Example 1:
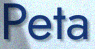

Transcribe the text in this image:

Peta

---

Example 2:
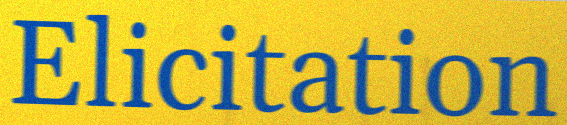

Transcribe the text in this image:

Elicitation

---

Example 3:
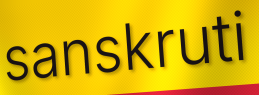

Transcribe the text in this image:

sanskruti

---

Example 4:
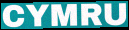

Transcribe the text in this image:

CYMRU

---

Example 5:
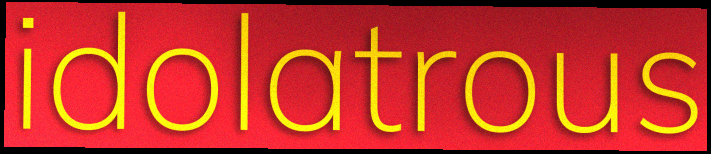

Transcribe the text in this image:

idolatrous